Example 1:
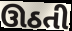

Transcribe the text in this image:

ઊઠતી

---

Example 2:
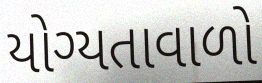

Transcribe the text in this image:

યોગ્યતાવાળો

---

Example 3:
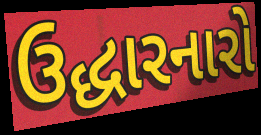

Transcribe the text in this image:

ઉદ્ધારનારો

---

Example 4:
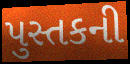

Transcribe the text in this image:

પુસ્તકની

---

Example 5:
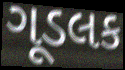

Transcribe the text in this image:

ગૂડલક